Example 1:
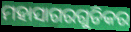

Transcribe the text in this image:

ମହାସାଗରଗୁଡିକର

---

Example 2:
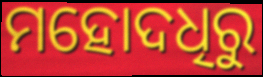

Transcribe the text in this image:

ମହୋଦଧିରୁ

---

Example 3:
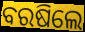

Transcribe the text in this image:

ବରଷିଲେ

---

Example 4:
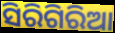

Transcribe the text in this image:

ସିରିଗିରିଆ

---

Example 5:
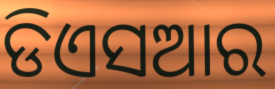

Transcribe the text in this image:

ଡିଏସଆର